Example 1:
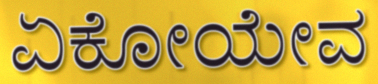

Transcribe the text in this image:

ಏಕೋಯೇವ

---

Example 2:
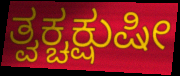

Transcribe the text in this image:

ತ್ವಕ್ಚಕ್ಷುಷೀ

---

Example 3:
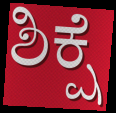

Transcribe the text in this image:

ಶಿಕ್ಷೆ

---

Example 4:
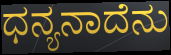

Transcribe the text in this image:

ಧನ್ಯನಾದೆನು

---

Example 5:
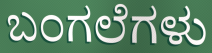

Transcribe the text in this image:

ಬಂಗಲೆಗಳು